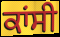
ਕਾਂਸੀ